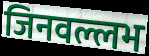
जिनवल्लभ